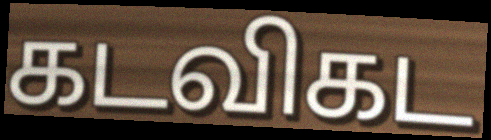
கடவிகட